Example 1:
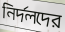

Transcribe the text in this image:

নির্দলদের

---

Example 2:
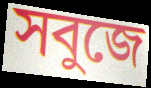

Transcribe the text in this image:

সবুজে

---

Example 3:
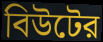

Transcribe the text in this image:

বিউটের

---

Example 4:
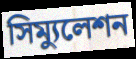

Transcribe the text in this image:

সিম্যুলেশন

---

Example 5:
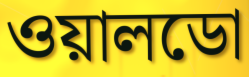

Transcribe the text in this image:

ওয়ালডো